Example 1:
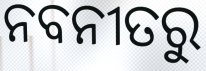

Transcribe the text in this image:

ନବନୀତରୁ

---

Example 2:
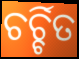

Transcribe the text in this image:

ଚର୍ଚ୍ଚିତ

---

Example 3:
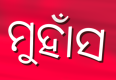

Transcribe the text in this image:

ମୁହାଁସ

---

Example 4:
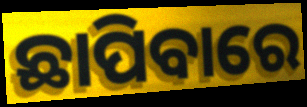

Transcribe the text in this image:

ଛାପିବାରେ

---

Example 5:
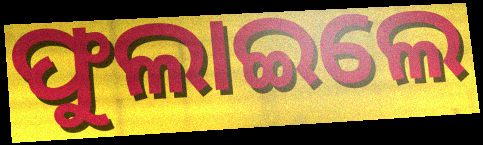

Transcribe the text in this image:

ଫୁଲାଇଲେ